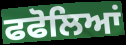
ਫਫੋਲਿਆਂ